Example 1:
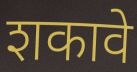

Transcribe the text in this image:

शकावे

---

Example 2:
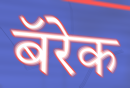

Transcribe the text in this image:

बॅरेक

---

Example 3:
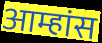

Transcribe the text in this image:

आम्हांस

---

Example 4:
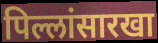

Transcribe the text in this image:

पिल्लांसारखा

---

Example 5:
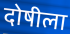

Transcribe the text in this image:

दोषीला